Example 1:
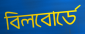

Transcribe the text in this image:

বিলবোর্ডে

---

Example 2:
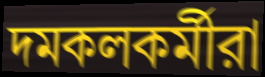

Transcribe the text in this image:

দমকলকর্মীরা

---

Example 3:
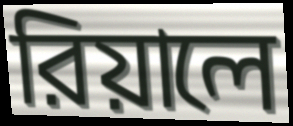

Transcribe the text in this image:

রিয়ালে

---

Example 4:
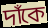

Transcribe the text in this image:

দাঁকে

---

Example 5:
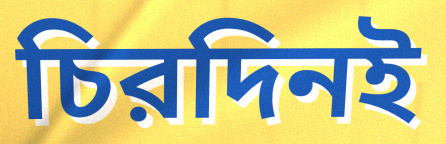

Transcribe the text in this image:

চিরদিনই